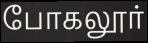
போகலூர்